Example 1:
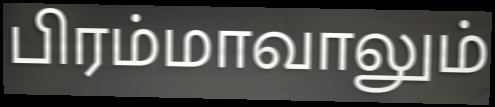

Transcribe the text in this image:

பிரம்மாவாலும்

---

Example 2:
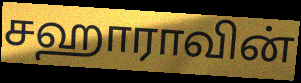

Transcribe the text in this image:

சஹாராவின்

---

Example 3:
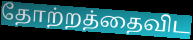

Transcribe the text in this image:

தோற்றத்தைவிட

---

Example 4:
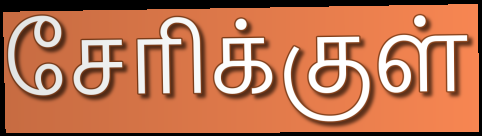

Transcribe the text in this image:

சேரிக்குள்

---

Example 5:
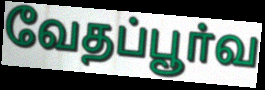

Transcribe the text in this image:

வேதப்பூர்வ